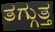
ತಗ್ಗುತ್ತ